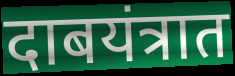
दाबयंत्रात